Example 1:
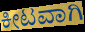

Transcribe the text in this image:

ಕೀಟವಾಗಿ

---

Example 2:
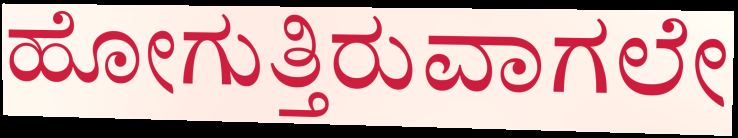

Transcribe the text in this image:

ಹೋಗುತ್ತಿರುವಾಗಲೇ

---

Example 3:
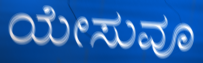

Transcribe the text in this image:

ಯೇಸುವೂ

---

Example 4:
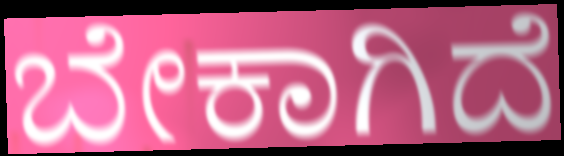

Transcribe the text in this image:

ಬೇಕಾಗಿದೆ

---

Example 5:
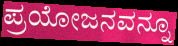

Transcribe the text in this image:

ಪ್ರಯೋಜನವನ್ನೂ